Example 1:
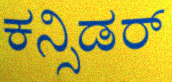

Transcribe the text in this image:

ಕನ್ಸಿಡರ್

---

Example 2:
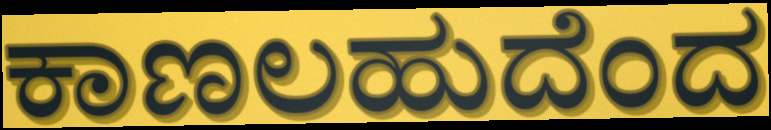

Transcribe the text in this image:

ಕಾಣಲಹುದೆಂದ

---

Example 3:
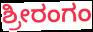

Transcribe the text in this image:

ಶ್ರೀರಂಗಂ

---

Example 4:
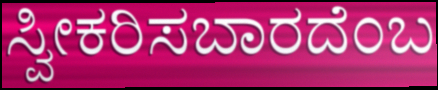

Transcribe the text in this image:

ಸ್ವೀಕರಿಸಬಾರದೆಂಬ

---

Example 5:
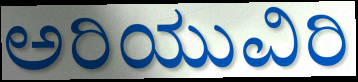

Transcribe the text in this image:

ಅರಿಯುವಿರಿ